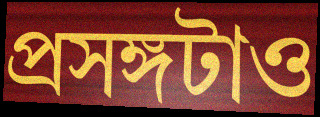
প্রসঙ্গটাও